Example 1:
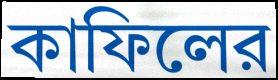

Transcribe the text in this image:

কাফিলের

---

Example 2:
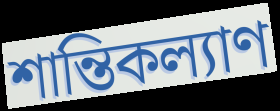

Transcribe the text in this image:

শান্তিকল্যাণ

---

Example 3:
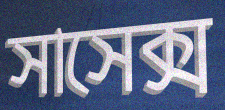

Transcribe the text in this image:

সাসেক্স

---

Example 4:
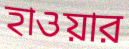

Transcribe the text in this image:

হাওয়ার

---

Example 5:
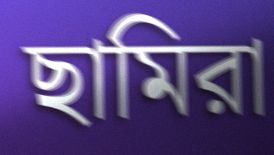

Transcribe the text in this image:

ছামিরা